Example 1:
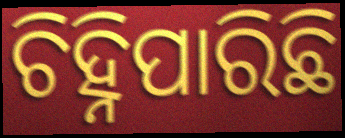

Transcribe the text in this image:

ଚିହ୍ନିପାରିଛି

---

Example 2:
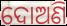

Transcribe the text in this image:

ଦୋଅଣି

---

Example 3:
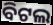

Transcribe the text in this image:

ବିଟଲ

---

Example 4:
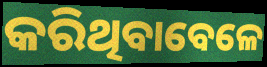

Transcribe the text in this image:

କରିଥିବାବେଳେ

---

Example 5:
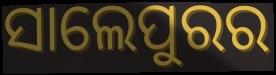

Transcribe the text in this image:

ସାଲେପୁରର